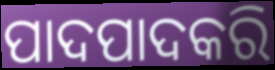
ପାଦପାଦକରି